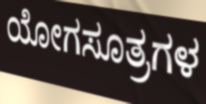
ಯೋಗಸೂತ್ರಗಳ